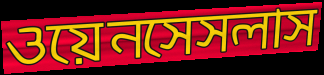
ওয়েনসেসলাস